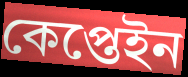
কেপ্তেইন